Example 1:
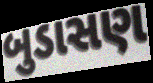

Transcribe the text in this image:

બુડાસણ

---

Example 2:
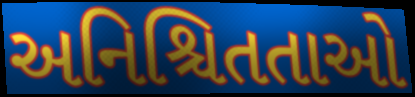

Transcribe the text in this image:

અનિશ્ચિતતાઓ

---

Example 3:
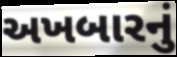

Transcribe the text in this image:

અખબારનું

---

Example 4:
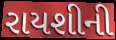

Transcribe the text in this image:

રાયશીની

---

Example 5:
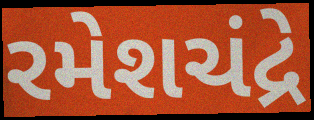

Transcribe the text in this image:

રમેશચંદ્રે